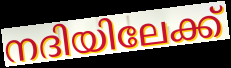
നദിയിലേക്ക്